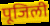
पूजिली